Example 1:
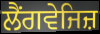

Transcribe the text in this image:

ਲੈਂਗਵੇਜਿਜ਼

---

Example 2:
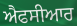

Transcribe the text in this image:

ਐਫਸੀਆਰ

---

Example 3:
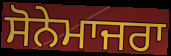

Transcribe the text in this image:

ਸੋਨੇਮਾਜਰਾ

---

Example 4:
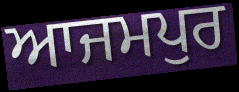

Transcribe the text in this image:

ਆਜਮਪੁਰ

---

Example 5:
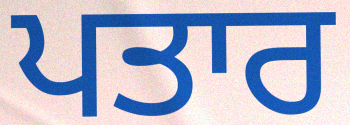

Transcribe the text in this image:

ਪਤਾਰ